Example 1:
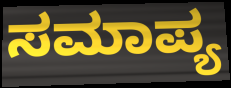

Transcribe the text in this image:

ಸಮಾಪ್ಯ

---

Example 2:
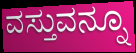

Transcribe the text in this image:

ವಸ್ತುವನ್ನೂ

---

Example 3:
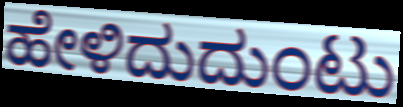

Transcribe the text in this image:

ಹೇಳಿದುದುಂಟು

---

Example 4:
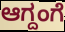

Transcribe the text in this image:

ಆಗ್ದಂಗೆ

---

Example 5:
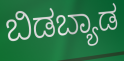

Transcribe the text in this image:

ಬಿಡಬ್ಯಾಡ